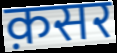
क़सर